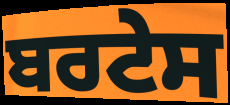
ਬਰਟੇਸ